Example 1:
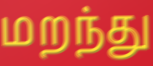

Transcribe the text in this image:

மறந்து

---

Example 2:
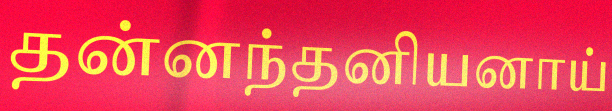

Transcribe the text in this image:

தன்னந்தனியனாய்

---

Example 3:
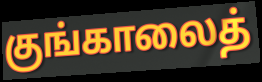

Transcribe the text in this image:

குங்காலைத்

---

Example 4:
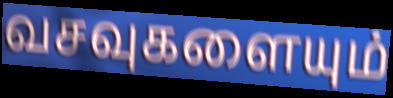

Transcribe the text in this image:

வசவுகளையும்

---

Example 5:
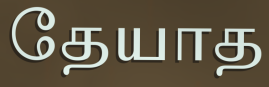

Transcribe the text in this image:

தேயாத